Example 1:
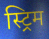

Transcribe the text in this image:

स्ट्रिम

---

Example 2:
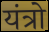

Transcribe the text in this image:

यंत्रो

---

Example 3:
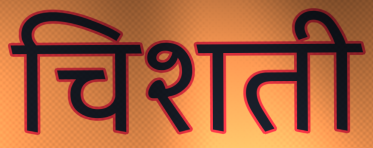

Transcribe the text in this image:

चिशती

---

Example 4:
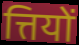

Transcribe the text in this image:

त्तियों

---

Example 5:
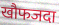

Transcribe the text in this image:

खौफजदा